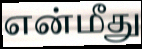
என்மீது